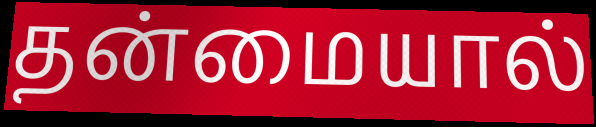
தன்மையால்